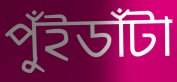
পুঁইডাঁটা